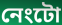
নেংটো